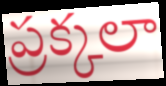
ప్రక్కలా